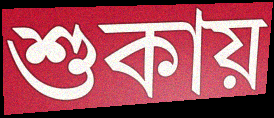
শুকায়